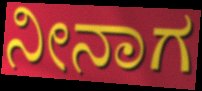
ನೀನಾಗ